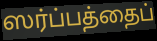
ஸர்ப்பத்தைப்